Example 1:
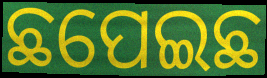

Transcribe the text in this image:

ଛପେଇଛ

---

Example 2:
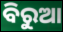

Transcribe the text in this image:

ବିରୁଆ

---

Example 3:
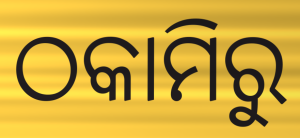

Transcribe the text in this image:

ଠକାମିରୁ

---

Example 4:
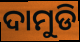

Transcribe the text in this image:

ଦାମୁଡି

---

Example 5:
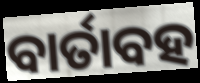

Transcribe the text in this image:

ବାର୍ତାବହ